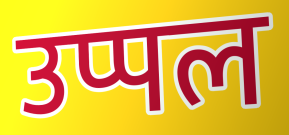
उप्पल